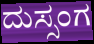
ದುಸ್ಸಂಗ